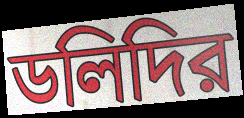
ডলিদির